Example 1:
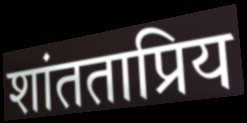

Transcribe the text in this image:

शांतताप्रिय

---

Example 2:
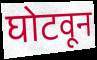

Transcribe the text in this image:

घोटवून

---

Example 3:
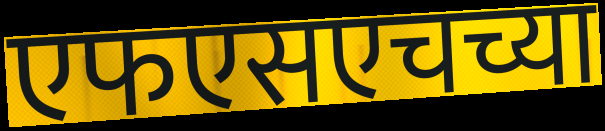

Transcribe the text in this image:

एफएसएचच्या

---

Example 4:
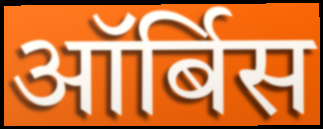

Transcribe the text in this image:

ऑर्बिस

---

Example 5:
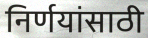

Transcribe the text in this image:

निर्णयांसाठी